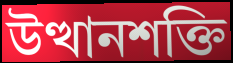
উত্থানশক্তি